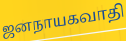
ஜனநாயகவாதி